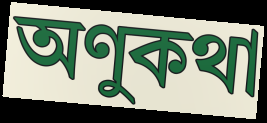
অণুকথা